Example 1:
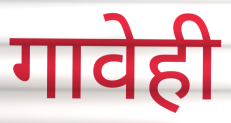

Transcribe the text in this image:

गावेही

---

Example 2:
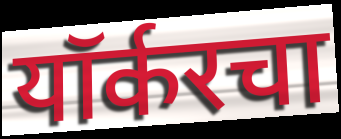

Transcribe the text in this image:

यॉर्करचा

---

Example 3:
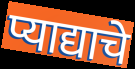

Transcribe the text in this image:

प्याद्याचे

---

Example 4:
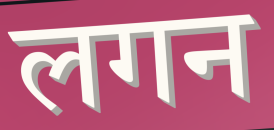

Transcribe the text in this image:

लगन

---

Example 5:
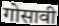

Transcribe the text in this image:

गोसावी